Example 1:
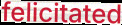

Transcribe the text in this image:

felicitated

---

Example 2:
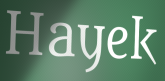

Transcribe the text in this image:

Hayek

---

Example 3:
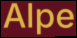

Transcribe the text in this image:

Alpe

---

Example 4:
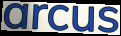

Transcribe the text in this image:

arcus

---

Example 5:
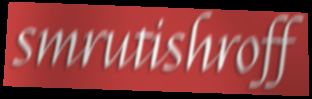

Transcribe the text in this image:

smrutishroff